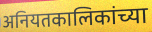
अनियतकालिकांच्या